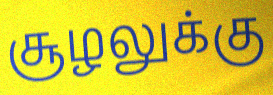
சூழலுக்கு